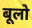
बूलो